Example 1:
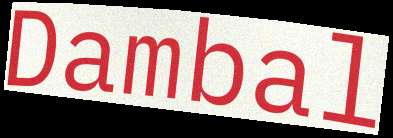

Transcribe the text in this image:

Dambal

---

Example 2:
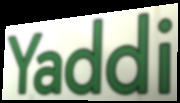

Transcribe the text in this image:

Yaddi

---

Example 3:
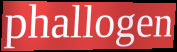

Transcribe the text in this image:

phallogen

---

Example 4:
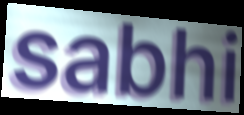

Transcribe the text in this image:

sabhi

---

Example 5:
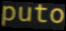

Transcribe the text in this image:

puto